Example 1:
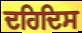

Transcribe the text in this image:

ਦਹਿਦਿਸ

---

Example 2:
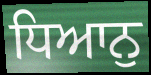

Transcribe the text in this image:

ਧਿਆਨੁ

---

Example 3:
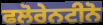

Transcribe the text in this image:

ਫਲੋਰੇਨਟੀਨੋ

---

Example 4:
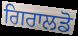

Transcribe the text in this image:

ਗਿਰਾਲਡੋ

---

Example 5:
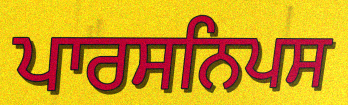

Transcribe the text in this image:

ਪਾਰਸਨਿਪਸ